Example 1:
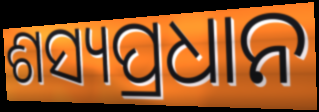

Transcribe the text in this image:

ଶସ୍ୟପ୍ରଧାନ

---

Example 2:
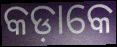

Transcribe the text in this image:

କଡ଼ାକେ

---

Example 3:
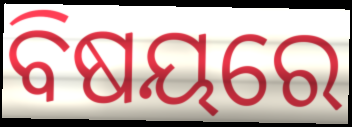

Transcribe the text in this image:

ବିଷୟରେ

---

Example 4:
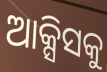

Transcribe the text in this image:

ଆକ୍ସିସକୁ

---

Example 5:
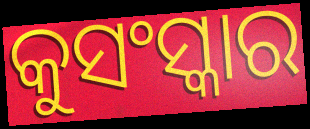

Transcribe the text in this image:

କୁସଂସ୍କାର